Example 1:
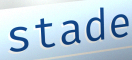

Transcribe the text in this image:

stade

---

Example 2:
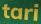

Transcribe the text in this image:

tari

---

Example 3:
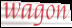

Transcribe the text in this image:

wagon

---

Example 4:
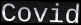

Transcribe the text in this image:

Covid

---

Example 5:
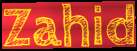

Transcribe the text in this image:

Zahid